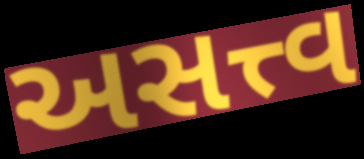
અસત્ત્વ